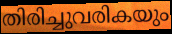
തിരിച്ചുവരികയും